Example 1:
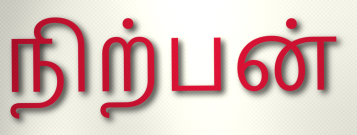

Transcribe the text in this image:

நிற்பன்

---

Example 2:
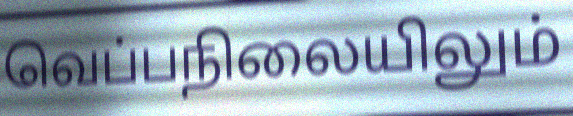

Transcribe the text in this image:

வெப்பநிலையிலும்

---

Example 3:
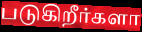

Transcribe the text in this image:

படுகிறீர்களா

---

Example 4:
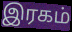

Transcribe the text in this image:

இரகம்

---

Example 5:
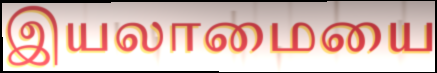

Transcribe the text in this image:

இயலாமையை